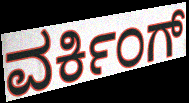
ವರ್ಕಿಂಗ್